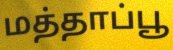
மத்தாப்பூ